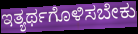
ಇತ್ಯರ್ಥಗೊಳಿಸಬೇಕು